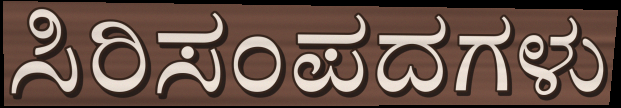
ಸಿರಿಸಂಪದಗಳು